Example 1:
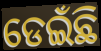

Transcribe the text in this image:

ଡେଇଁଛି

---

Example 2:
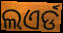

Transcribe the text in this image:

ଲଏର୍ଡ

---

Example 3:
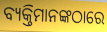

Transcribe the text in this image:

ବ୍ୟକ୍ତିମାନଙ୍କଠାରେ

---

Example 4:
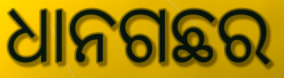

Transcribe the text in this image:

ଧାନଗଛର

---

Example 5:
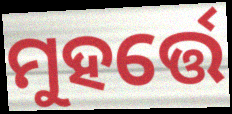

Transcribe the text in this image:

ମୁହର୍ତ୍ତେ